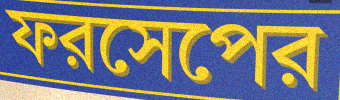
ফরসেপের